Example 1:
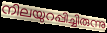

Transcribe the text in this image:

നിലയുറപ്പിച്ചിരുന്നു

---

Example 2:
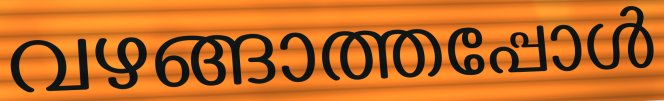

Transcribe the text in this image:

വഴങ്ങാത്തപ്പോൾ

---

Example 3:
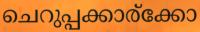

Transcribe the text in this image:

ചെറുപ്പക്കാര്ക്കോ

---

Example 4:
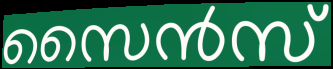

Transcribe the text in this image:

സൈൻസ്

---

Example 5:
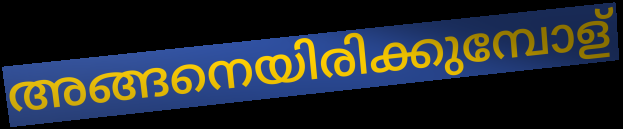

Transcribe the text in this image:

അങ്ങനെയിരിക്കുമ്പോള്